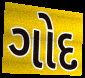
ગોદ